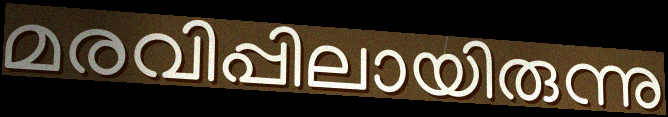
മരവിപ്പിലായിരുന്നു